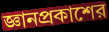
জ্ঞানপ্রকাশের